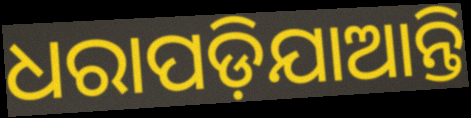
ଧରାପଡ଼ିଯାଆନ୍ତି